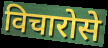
विचारोसे